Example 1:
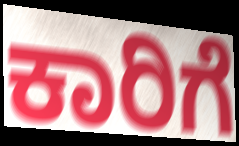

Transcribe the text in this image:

ಕಾರಿಗೆ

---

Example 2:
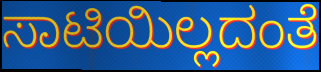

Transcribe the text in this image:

ಸಾಟಿಯಿಲ್ಲದಂತೆ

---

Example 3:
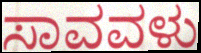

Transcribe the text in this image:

ಸಾವವಳು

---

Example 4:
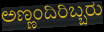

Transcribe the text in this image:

ಅಣ್ಣಂದಿರಿಬ್ಬರು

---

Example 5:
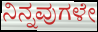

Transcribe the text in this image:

ನಿನ್ನವುಗಳೇ